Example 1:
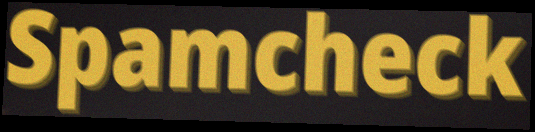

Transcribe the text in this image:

Spamcheck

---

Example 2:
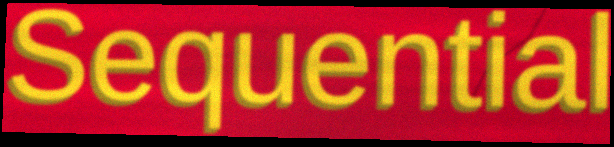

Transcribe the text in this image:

Sequential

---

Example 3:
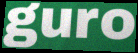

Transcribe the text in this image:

guro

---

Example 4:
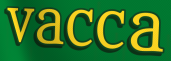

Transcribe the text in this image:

vacca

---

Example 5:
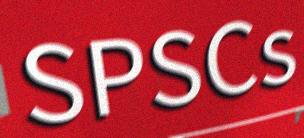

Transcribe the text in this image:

SPSCs